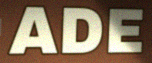
ADE